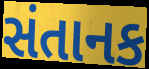
સંતાનક